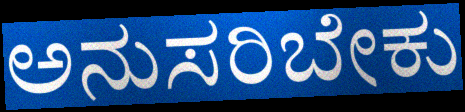
ಅನುಸರಿಬೇಕು